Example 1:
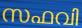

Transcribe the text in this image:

സഫവി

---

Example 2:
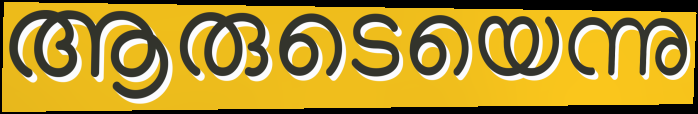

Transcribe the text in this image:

ആരുടെയെന്നു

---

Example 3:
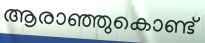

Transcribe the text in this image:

ആരാഞ്ഞുകൊണ്ട്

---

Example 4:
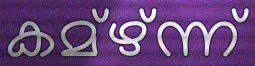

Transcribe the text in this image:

കമ്ഴ്ന്ന്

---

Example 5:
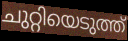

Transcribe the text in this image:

ചുറ്റിയെടുത്ത്